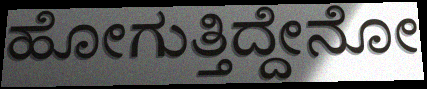
ಹೋಗುತ್ತಿದ್ದೇನೋ